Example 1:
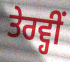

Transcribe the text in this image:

ਤੇਰਵ੍ਹੀਂ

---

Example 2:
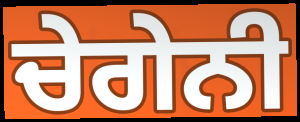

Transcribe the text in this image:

ਚੇਗੇਨੀ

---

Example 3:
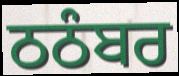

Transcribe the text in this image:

ਠਠੰਬਰ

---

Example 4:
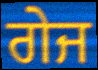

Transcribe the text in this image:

ਗੇਜ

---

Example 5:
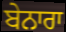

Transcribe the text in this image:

ਬੇਨਾਰਾ